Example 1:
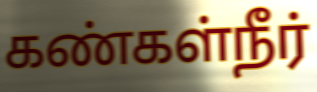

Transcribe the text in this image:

கண்கள்நீர்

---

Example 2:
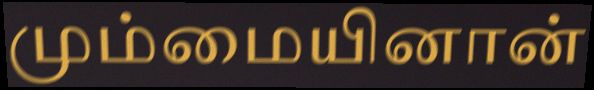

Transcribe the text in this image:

மும்மையினான்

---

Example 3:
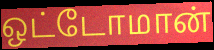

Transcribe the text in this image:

ஒட்டோமான்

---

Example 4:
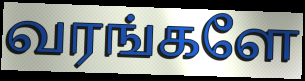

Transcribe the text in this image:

வரங்களே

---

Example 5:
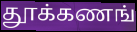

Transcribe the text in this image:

தூக்கணங்